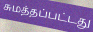
சுமத்தப்பட்டது